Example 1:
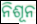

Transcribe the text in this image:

ନିଶୂନ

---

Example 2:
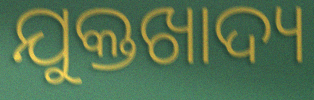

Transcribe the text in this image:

ଯୁକ୍ତଖାଦ୍ୟ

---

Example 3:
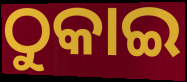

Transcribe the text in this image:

ଠୁକାଇ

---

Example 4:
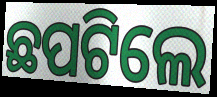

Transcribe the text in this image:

ଛପଟିଲେ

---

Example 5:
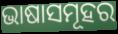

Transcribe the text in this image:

ଭାଷାସମୂହର